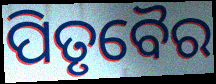
ପିତୃବୈର